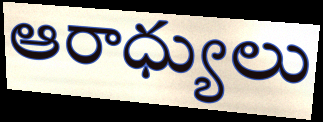
ఆరాధ్యులు